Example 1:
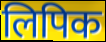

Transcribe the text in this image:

लिपिक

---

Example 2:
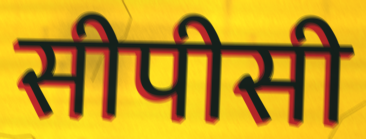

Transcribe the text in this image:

सीपीसी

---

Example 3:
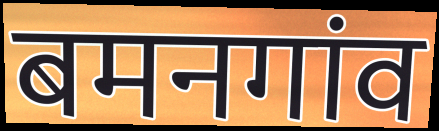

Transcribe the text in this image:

बमनगांव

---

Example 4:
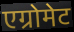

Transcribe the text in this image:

एग्रोमेट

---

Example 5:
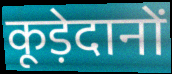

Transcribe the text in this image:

कूड़ेदानों